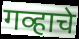
गव्हाचे